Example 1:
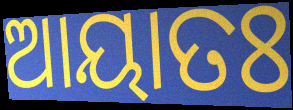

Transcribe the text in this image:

ଆୟାତଃ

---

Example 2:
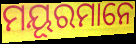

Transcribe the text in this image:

ମୟୂରମାନେ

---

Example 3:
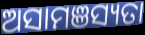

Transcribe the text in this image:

ଅସାମଞସ୍ୟତା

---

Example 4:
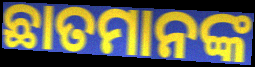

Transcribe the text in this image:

ଛାତମାନଙ୍କ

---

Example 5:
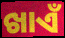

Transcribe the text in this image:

ଖାଏଁ